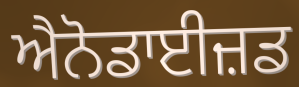
ਐਨੋਡਾਈਜ਼ਡ